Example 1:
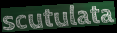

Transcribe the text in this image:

scutulata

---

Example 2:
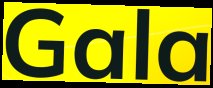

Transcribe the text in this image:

Gala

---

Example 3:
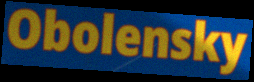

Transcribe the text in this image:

Obolensky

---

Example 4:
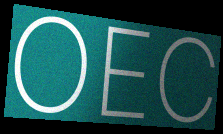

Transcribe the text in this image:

OEC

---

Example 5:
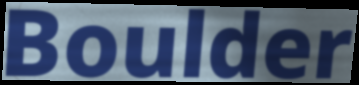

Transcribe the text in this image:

Boulder